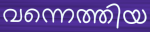
വന്നെത്തിയ